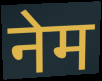
नेम